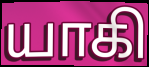
யாகி